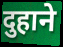
दुहाने